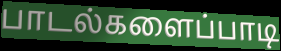
பாடல்களைப்பாடி